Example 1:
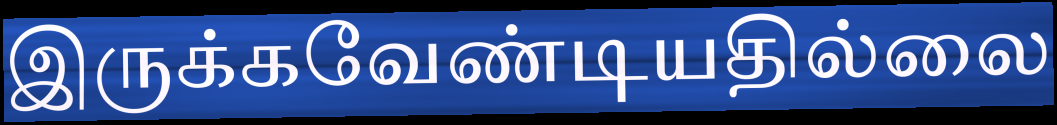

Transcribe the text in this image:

இருக்கவேண்டியதில்லை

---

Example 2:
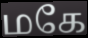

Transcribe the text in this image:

மகே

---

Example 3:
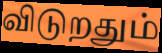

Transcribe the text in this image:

விடுறதும்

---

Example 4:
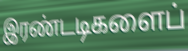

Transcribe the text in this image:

இரண்டடிகளைப்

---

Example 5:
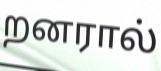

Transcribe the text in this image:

றனரால்